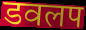
डवलप